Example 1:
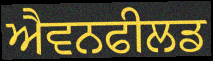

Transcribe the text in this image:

ਐਵਨਫੀਲਡ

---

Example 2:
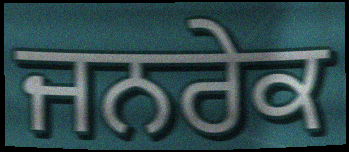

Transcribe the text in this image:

ਜਨਰੇਕ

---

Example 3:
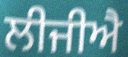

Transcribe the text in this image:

ਲੀਜੀਐ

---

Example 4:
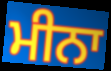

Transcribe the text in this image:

ਮੀਨਾ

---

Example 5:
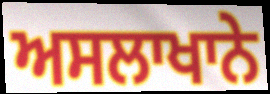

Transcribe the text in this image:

ਅਸਲਾਖਾਨੇ